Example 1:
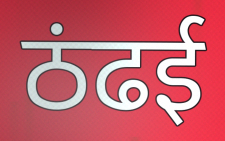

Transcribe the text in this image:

ठंढई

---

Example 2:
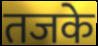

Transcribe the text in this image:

तजके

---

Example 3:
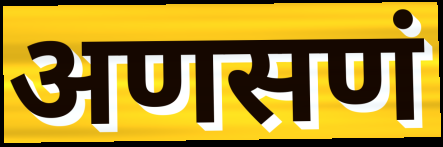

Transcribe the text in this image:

अणसणं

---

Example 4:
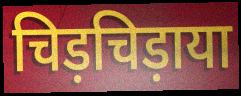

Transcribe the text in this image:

चिड़चिड़ाया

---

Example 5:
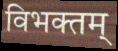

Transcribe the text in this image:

विभक्तम्